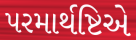
પરમાર્થષ્ટિએ